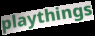
playthings